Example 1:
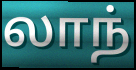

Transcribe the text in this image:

லாந்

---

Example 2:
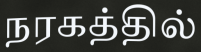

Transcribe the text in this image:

நரகத்தில்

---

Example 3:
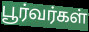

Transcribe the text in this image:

பூர்வர்கள்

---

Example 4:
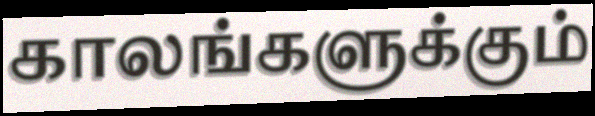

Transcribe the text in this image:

காலங்களுக்கும்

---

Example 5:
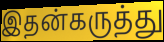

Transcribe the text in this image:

இதன்கருத்து